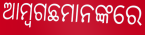
ଆମ୍ବଗଛମାନଙ୍କରେ